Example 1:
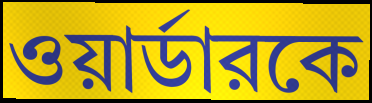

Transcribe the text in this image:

ওয়ার্ডারকে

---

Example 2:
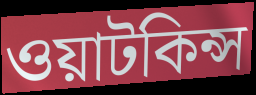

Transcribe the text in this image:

ওয়াটকিন্স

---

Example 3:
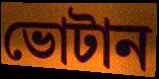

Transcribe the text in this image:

ভোটান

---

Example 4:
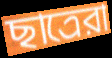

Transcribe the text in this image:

ছাত্রেরা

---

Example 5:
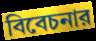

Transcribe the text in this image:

বিবেচনার